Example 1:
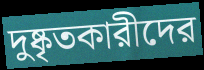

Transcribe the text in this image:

দুষ্কৃতকারীদের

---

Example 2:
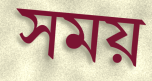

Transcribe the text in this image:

সময়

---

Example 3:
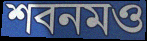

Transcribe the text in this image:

শবনমও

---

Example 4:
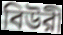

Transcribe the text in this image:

বিউরী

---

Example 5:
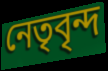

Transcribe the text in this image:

নেতৃবৃন্দ